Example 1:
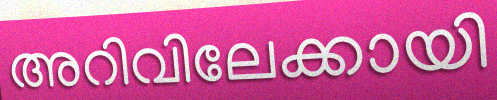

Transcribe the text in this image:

അറിവിലേക്കായി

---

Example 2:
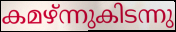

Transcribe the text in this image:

കമഴ്ന്നുകിടന്നു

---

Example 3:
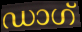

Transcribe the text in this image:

ഡാഗ്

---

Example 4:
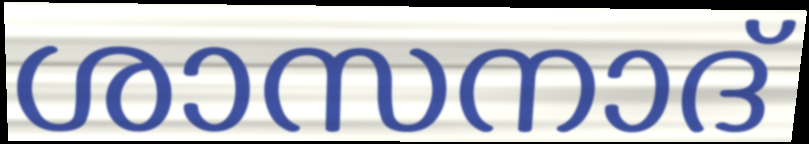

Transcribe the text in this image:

ശാസനാദ്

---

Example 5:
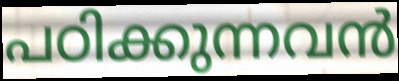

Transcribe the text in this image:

പഠിക്കുന്നവൻ